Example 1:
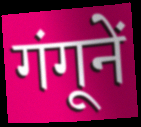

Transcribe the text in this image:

गंगूनें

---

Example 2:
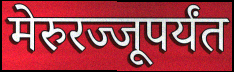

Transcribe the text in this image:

मेरुरज्जूपर्यंत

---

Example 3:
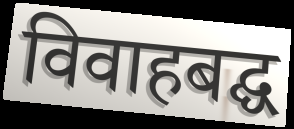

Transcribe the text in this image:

विवाहबद्घ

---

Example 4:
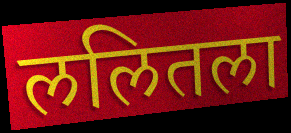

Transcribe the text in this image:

ललितला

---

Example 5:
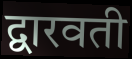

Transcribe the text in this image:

द्वारवती